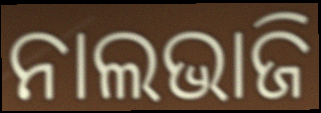
ନାଲଭାଜି